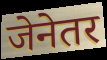
जेनेतर